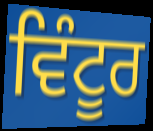
ਵਿੰਟੂਰ